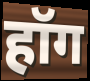
हॉग